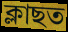
ক্লাছত